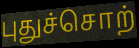
புதுச்சொற்